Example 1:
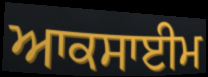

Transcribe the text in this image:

ਆਕਸਾਈਮ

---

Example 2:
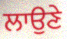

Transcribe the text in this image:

ਲਾਉਣੇ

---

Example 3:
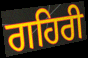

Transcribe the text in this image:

ਗਹਿਰੀ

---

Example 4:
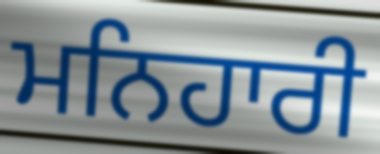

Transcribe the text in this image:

ਮਨਿਹਾਰੀ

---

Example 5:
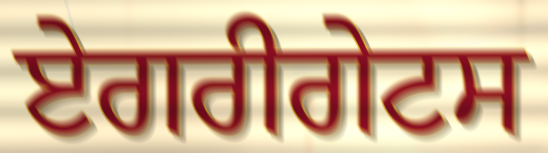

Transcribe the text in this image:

ਏਗਰੀਗੇਟਸ